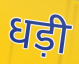
धड़ी